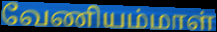
வேணியம்மாள்